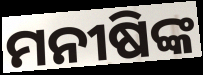
ମନୀଷିଙ୍କ